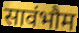
सावंभौम